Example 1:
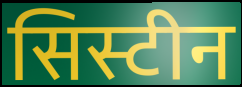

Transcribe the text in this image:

सिस्टीन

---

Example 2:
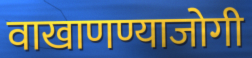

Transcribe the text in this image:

वाखाणण्याजोगी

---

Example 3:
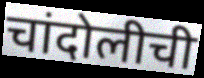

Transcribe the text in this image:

चांदोलीची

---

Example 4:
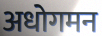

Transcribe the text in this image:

अधोगमन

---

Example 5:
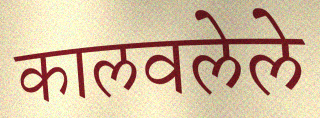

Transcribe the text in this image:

कालवलेले